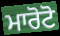
ਮਾਰੋਟੋ